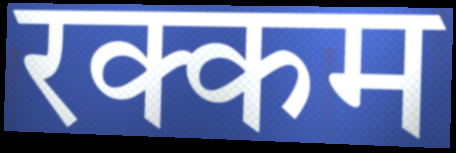
रक्कम